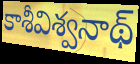
కాశీవిశ్వనాథ్